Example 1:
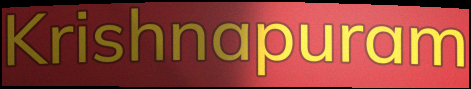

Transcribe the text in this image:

Krishnapuram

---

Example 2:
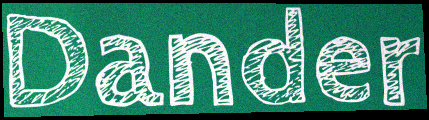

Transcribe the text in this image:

Dander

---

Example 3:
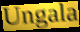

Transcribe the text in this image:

Ungala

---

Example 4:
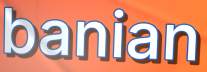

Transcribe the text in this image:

banian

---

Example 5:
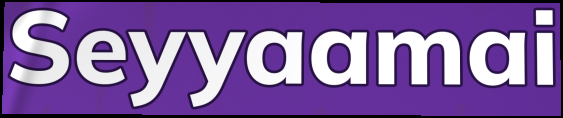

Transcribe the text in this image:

Seyyaamai